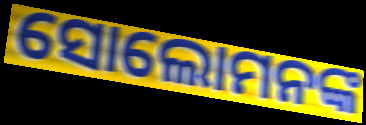
ସୋଲୋମନଙ୍କ